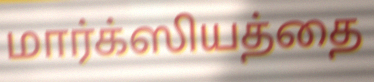
மார்க்ஸியத்தை